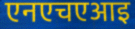
एनएचएआइ